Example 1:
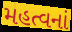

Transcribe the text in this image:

મહત્વનાં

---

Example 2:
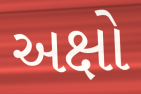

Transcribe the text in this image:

અક્ષો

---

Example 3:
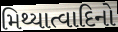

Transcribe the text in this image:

મિથ્યાત્વાદિનો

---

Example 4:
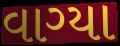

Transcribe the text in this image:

વાગ્યા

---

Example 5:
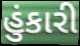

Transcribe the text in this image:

હુંકારી